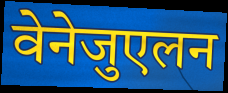
वेनेजुएलन